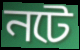
নটে